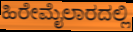
ಹಿರೇಮೈಲಾರದಲ್ಲಿ